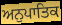
ਅਨੁਪਾਤਿਕ